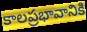
కాలప్రభావానికి